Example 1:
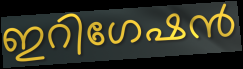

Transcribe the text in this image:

ഇറിഗേഷൻ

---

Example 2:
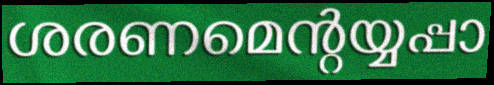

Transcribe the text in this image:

ശരണമെന്റയ്യപ്പാ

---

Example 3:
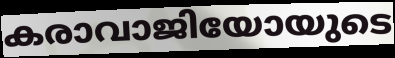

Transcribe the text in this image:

കരാവാജിയോയുടെ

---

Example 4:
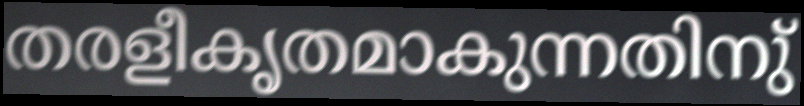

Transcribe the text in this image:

തരളീകൃതമാകുന്നതിനു്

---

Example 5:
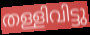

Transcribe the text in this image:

തള്ളിവിട്ടു